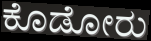
ಕೊಡೋರು